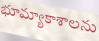
భూమ్యాకాశాలను